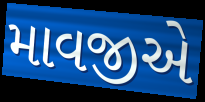
માવજીએ